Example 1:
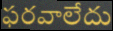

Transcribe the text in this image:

ఫరవాలేదు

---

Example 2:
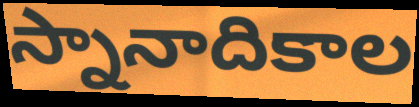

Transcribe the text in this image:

స్నానాదికాల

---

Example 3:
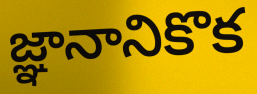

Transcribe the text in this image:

జ్ఞానానికొక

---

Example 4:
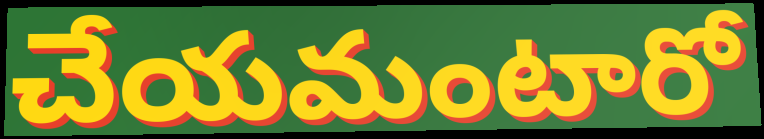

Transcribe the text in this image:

చేయమంటారో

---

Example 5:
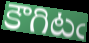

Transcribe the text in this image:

కౌగిటఁ